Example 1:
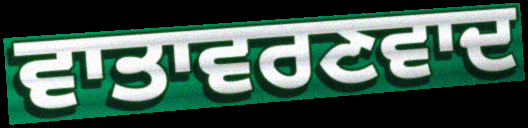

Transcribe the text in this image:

ਵਾਤਾਵਰਣਵਾਦ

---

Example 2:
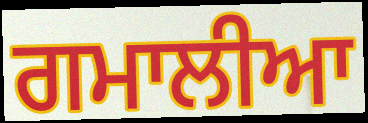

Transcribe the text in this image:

ਗਮਾਲੀਆ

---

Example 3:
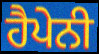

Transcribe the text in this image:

ਹੈਪੇਨੀ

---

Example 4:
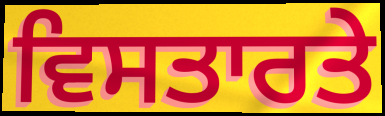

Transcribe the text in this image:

ਵਿਸਤਾਰਤੇ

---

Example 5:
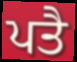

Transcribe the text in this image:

ਪਤੈ